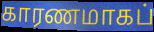
காரணமாகப்